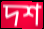
দশ